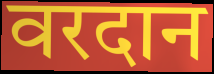
वरदान